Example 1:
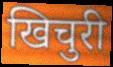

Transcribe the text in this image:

खिचुरी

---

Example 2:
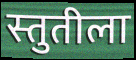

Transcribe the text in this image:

स्तुतीला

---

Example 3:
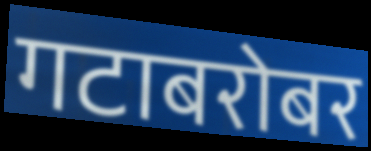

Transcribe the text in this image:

गटाबरोबर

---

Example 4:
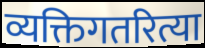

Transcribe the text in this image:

व्यक्तिगतरित्या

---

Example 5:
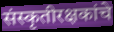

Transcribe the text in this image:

संस्कृतीरक्षकांचे